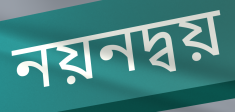
নয়নদ্বয়